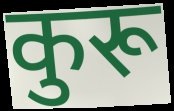
कुरू